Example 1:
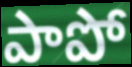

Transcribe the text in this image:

పాపో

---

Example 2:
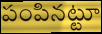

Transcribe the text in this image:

పంపినట్టూ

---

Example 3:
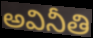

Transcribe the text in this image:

అవినీతి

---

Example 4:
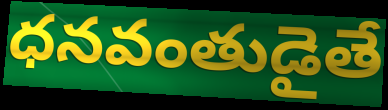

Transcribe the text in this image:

ధనవంతుడైతే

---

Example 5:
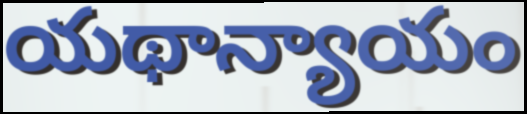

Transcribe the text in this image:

యథాన్యాయం